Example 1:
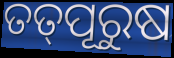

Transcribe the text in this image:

ତତ୍‌ପୂରୁଷ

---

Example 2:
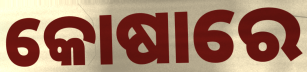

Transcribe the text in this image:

କୋଷାରେ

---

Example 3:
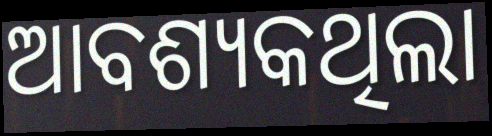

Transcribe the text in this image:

ଆବଶ୍ୟକଥିଲା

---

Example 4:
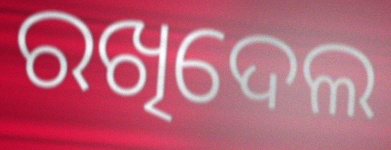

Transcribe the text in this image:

ରଖିଦେଲ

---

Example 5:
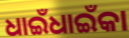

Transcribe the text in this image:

ଧାଇଁଧାଇଁକା